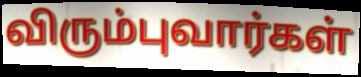
விரும்புவார்கள்